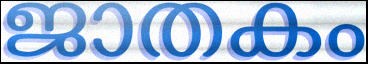
ജാതകം